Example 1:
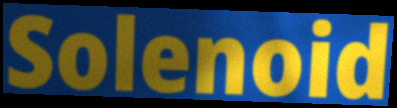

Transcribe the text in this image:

Solenoid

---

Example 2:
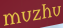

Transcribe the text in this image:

muzhu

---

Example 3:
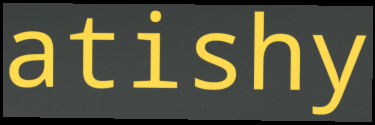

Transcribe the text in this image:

atishy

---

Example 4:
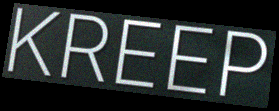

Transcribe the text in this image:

KREEP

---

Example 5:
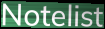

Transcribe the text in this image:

Notelist